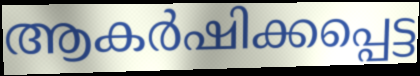
ആകർഷിക്കപ്പെട്ട